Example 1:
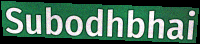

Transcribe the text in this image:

Subodhbhai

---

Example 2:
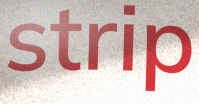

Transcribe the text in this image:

strip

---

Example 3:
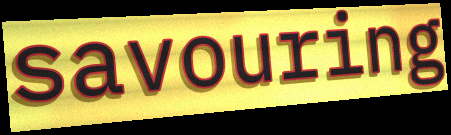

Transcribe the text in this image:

savouring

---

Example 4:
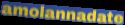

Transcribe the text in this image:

amolannadate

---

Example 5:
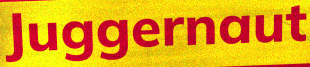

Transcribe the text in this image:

Juggernaut